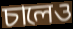
চালেও